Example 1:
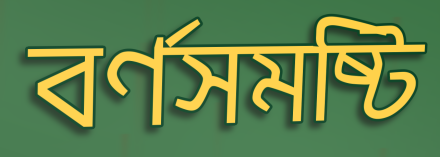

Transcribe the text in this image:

বৰ্ণসমষ্টি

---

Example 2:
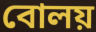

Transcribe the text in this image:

বোলয়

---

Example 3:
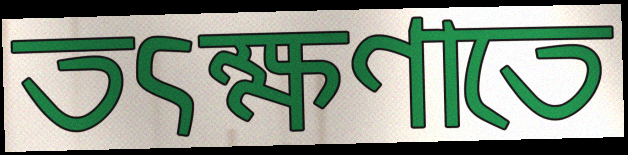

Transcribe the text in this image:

তৎক্ষণাতে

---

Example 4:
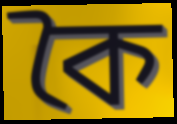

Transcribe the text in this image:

কৈ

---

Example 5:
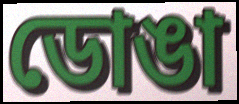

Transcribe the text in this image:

ডোঙা